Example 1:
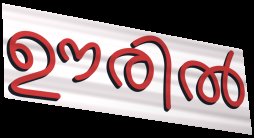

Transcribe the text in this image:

ഊരിൽ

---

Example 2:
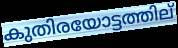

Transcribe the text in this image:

കുതിരയോട്ടത്തില്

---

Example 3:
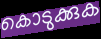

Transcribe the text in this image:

കൊടുക്കുക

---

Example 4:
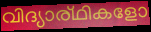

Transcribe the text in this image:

വിദ്യാര്ഥികളോ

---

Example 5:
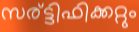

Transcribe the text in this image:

സര്ട്ടിഫിക്കറ്റും